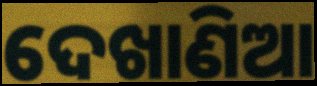
ଦେଖାଣିଆ